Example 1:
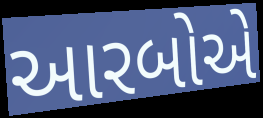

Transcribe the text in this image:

આરબોએ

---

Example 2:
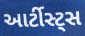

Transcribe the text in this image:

આર્ટીસ્ટ્સ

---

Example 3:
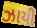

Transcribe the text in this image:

ઝાયી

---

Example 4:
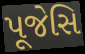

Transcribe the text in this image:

પૂજેસિ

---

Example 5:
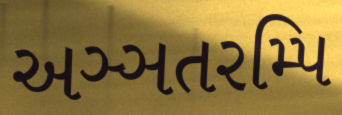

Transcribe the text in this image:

અઞ્ઞતરમ્પિ